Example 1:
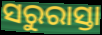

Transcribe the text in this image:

ସରୁରାସ୍ତା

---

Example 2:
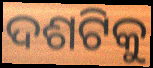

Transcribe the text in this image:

ଦଶଟିକୁ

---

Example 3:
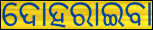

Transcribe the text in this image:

ଦୋହରାଇବା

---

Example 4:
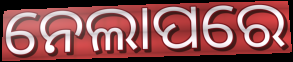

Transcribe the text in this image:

ନେଲାପରେ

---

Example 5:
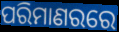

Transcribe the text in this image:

ପରିମାଣରରେ